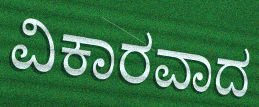
ವಿಕಾರವಾದ